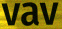
vav